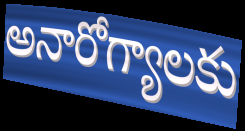
అనారోగ్యాలకు